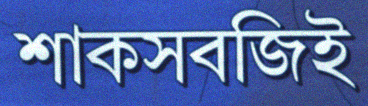
শাকসবজিই